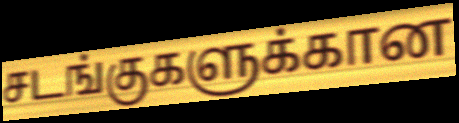
சடங்குகளுக்கான